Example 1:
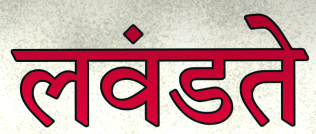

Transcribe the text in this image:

लवंडते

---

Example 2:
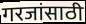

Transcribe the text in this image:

गरजांसाठी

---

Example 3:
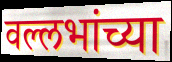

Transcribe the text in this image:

वल्लभांच्या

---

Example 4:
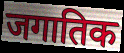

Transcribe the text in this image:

जगातिक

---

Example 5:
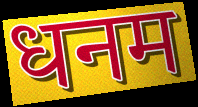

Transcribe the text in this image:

धनम